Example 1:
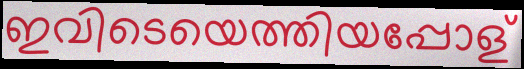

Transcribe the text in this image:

ഇവിടെയെത്തിയപ്പോള്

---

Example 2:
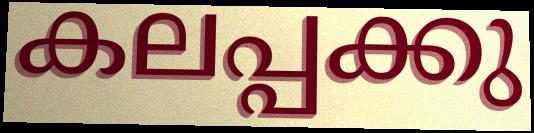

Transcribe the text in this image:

കലപ്പക്കു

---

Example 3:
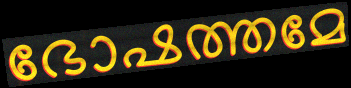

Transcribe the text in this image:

ഭോഷത്തമേ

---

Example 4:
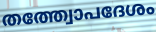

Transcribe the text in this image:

തത്ത്വോപദേശം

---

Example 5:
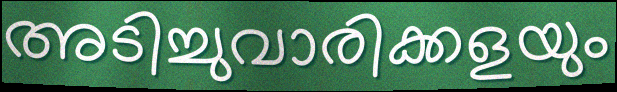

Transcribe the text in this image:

അടിച്ചുവാരിക്കളയും